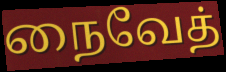
நைவேத்